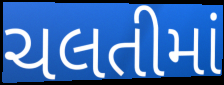
ચલતીમાં